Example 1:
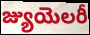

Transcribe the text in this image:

జ్యుయెలరీ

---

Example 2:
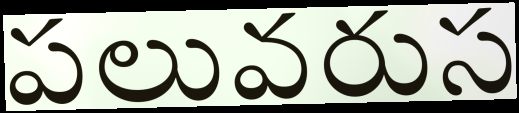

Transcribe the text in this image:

పలువరుస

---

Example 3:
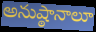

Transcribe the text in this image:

అనుష్ఠానాలూ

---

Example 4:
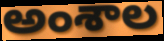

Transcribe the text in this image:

అంశాల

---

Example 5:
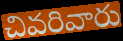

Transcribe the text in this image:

చివరివారు